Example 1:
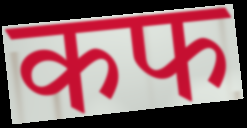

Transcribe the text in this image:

कफ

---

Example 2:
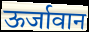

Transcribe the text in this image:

ऊर्जावान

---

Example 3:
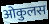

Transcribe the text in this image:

ओकुलस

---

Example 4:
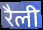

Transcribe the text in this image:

रैली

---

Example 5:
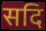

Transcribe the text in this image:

सदि